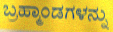
ಬ್ರಹ್ಮಾಂಡಗಳನ್ನು